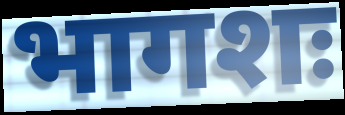
भागशः